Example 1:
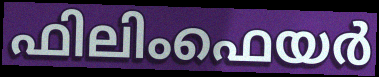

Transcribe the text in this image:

ഫിലിംഫെയർ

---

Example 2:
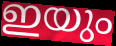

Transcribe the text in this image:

ഇയും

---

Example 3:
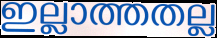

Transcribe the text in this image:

ഇല്ലാത്തതല്ല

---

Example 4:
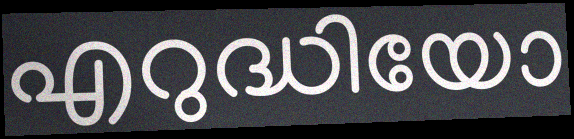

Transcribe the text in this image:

എറുദ്ധിയോ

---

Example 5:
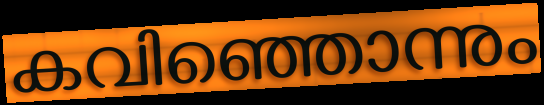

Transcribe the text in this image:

കവിഞ്ഞൊന്നും